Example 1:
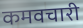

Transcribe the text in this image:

कमवचारी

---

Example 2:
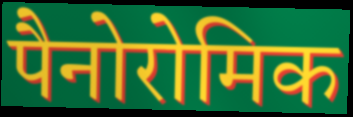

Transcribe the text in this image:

पैनोरोमिक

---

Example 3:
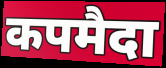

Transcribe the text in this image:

कपमैदा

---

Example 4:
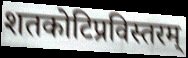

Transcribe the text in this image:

शतकोटिप्रविस्तरम्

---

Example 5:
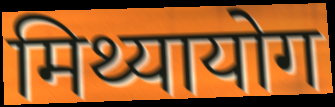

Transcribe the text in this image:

मिथ्यायोग